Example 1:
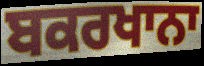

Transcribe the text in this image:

ਬਕਰਖਾਨਾ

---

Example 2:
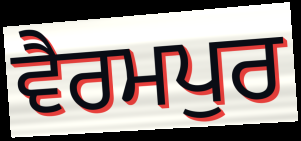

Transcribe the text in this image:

ਵੈਰਮਪੁਰ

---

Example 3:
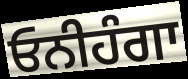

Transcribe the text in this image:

ਓਨੀਹੰਗਾ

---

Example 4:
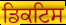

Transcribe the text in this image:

ਡਿਕਟਿਸ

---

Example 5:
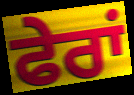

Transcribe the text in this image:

ਫੇਰਾਂ